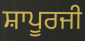
ਸ਼ਾਪੂਰਜੀ